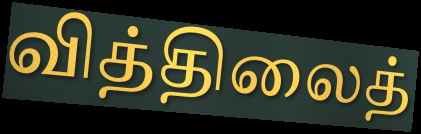
வித்திலைத்